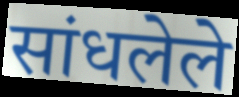
सांधलेले